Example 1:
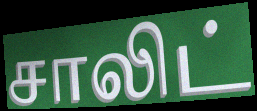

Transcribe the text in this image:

சாலிட்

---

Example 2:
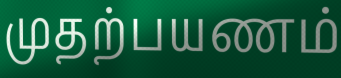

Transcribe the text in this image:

முதற்பயணம்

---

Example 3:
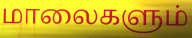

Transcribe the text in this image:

மாலைகளும்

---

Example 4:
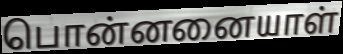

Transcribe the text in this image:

பொன்னனையாள்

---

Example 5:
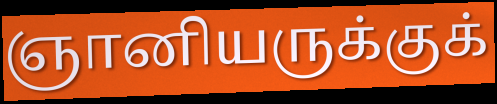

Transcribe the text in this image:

ஞானியருக்குக்